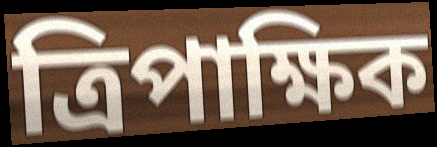
ত্রিপাক্ষিক